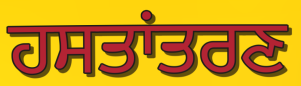
ਹਸਤਾਂਤਰਣ